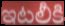
ఇటలీకి